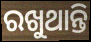
ରଖୁଥାନ୍ତି